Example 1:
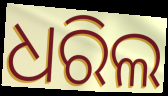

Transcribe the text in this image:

ଧରିଲ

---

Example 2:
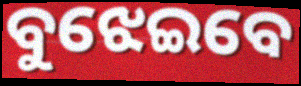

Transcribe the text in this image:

ବୁଝେଇବେ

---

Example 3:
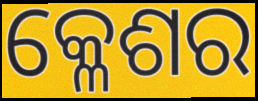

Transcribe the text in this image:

କ୍ଳେଶର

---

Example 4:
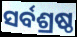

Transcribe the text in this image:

ସର୍ବଶ୍ରଷ୍ଠ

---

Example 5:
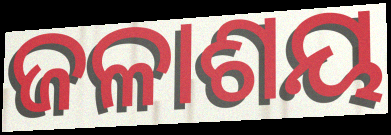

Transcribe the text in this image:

ଜଳାଶୟ